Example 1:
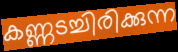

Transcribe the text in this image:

കണ്ണടച്ചിരിക്കുന്ന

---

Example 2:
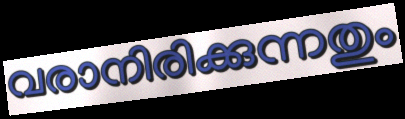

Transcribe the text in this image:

വരാനിരിക്കുന്നതും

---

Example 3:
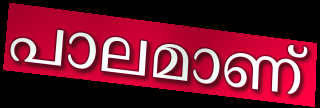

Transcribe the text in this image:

പാലമാണ്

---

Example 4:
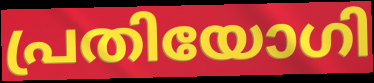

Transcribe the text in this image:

പ്രതിയോഗി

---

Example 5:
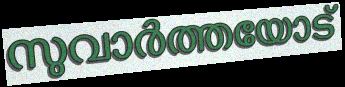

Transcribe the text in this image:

സുവാർത്തയോട്